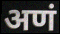
अणं